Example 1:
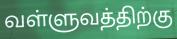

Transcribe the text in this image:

வள்ளுவத்திற்கு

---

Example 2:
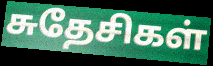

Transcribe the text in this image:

சுதேசிகள்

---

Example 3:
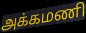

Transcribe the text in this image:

அக்கமணி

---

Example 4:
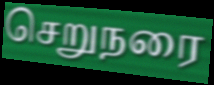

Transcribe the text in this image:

செறுநரை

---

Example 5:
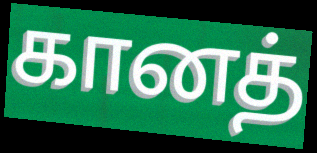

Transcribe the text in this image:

கானத்